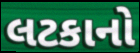
લટકાનો